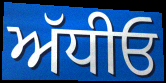
ਅੱਧੀਓ